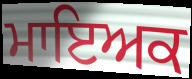
ਮਾਇਅਕ